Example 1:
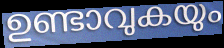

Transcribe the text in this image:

ഉണ്ടാവുകയും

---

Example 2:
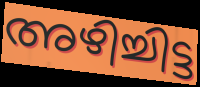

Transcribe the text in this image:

അഴിച്ചിട്ട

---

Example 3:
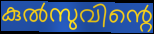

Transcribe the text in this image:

കുൽസുവിന്റെ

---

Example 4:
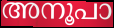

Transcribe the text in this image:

അനൂപാ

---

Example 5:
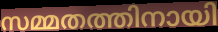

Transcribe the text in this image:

സമ്മതത്തിനായി